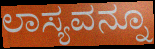
ಲಾಸ್ಯವನ್ನೂ